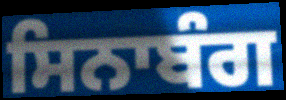
ਸਿਨਾਬੰਗ